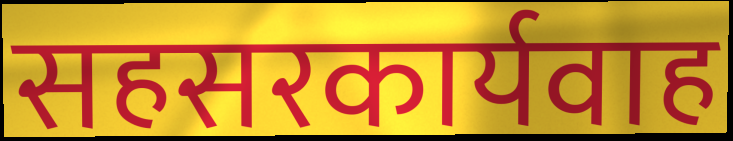
सहसरकार्यवाह